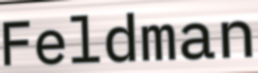
Feldman